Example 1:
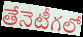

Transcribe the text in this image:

తేనెటీగలో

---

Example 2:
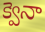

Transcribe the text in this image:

క్వెనా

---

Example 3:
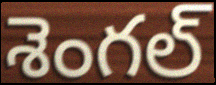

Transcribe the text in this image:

శెంగల్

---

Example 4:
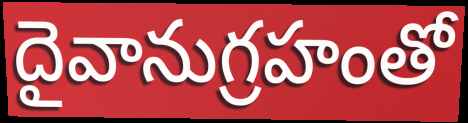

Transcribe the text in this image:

దైవానుగ్రహంతో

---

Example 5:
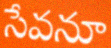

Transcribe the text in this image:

సేవనూ